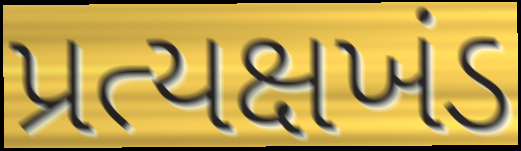
પ્રત્યક્ષખંડ